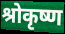
श्रोकृष्ण